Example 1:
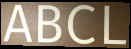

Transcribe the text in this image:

ABCL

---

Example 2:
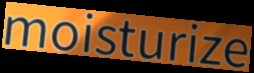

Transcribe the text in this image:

moisturize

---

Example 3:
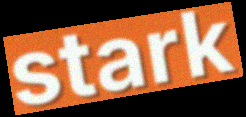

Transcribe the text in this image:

stark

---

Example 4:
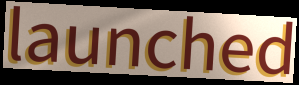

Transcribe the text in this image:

launched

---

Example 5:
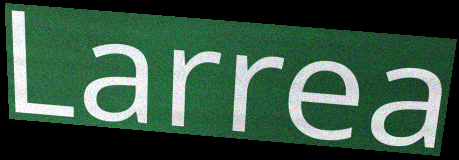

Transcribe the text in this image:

Larrea